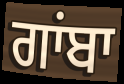
ਗਾਂਬਾ